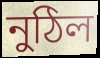
নুঠিল